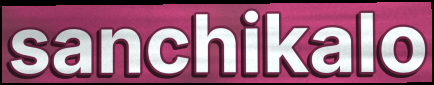
sanchikalo